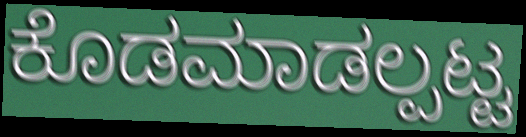
ಕೊಡಮಾಡಲ್ಪಟ್ಟ